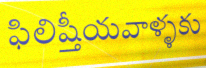
ఫిలిష్తీయవాళ్ళకు